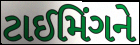
ટાઈમિંગને